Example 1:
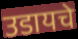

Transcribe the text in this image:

उडायचे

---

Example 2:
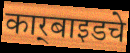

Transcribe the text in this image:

कार्बाइडचे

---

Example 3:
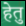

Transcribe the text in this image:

हेतु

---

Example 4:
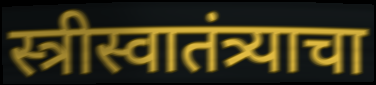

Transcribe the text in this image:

स्त्रीस्वातंत्र्याचा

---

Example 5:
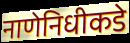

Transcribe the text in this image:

नाणेनिधीकडे